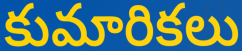
కుమారికలు